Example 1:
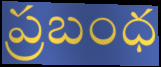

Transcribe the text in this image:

ప్రబంధ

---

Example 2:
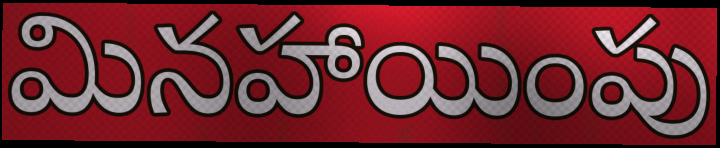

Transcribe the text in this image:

మినహాయింపు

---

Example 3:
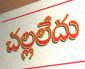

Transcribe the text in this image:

చల్లలేదు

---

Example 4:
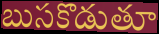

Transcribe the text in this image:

బుసకొడుతూ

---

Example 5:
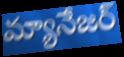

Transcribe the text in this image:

మ్యానేజర్